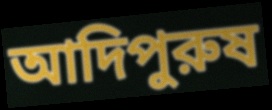
আদিপুরুষ